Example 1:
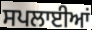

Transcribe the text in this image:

ਸਪਲਾਈਆਂ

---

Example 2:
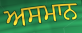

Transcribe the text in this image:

ਅਸਮਾਨ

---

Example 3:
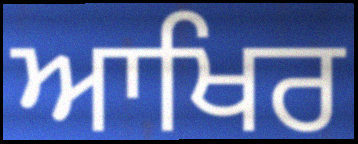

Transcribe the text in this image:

ਆਖਿਰ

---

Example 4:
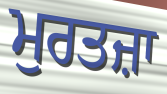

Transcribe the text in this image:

ਮੁਰਤਜ਼ਾ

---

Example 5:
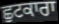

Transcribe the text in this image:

ਛੁਟਕਾਰਾ